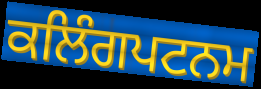
ਕਲਿੰਗਪਟਨਮ